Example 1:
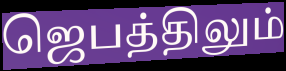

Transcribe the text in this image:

ஜெபத்திலும்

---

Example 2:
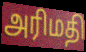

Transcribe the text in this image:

அரிமதி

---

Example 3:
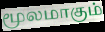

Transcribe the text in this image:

மூலமாகும்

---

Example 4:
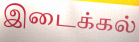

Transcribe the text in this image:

இடைக்கல்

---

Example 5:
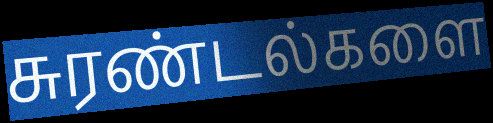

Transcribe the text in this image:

சுரண்டல்களை